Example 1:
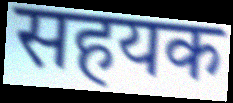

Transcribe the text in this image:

सहयक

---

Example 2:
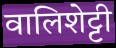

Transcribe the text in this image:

वालिशेट्टी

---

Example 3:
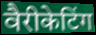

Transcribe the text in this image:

वैरीकेटिंग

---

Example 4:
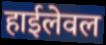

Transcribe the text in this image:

हाईलेवल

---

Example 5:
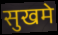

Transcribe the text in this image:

सुखमे